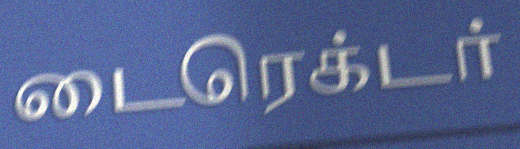
டைரெக்டர்